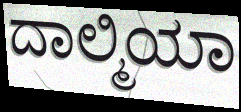
ದಾಲ್ಮಿಯಾ